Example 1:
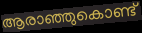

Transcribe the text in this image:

ആരാഞ്ഞുകൊണ്ട്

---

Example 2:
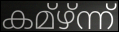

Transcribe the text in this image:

കമ്ഴ്ന്ന്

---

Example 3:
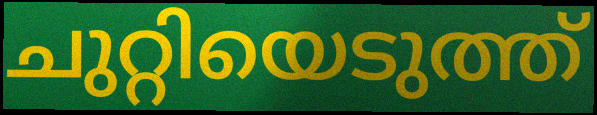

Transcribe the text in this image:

ചുറ്റിയെടുത്ത്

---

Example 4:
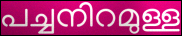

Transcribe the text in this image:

പച്ചനിറമുള്ള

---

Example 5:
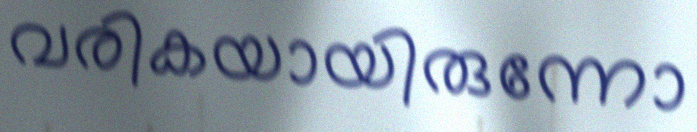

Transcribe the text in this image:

വരികയായിരുന്നോ